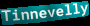
Tinnevelly